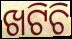
ଖଟିଚି